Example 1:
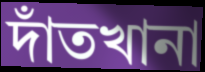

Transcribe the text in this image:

দাঁতখানা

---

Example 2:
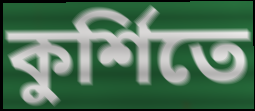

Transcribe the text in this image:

কুর্শিতে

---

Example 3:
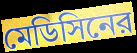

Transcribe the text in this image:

মেডিসিনের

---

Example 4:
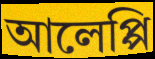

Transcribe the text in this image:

আলেপ্পি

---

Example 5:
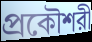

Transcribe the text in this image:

প্রকৌশরী